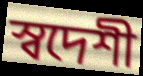
স্বদেশী